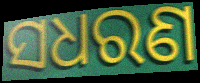
ସଧରଣ